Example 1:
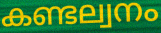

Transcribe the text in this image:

കണ്ടല്വനം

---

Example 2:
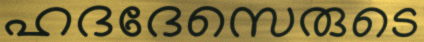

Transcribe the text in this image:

ഹദദേസെരുടെ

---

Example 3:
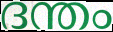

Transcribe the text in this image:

ദന്തം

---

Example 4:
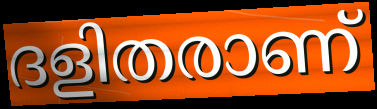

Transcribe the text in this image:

ദളിതരാണ്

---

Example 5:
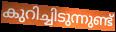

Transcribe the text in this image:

കുറിച്ചിടുന്നുണ്ട്